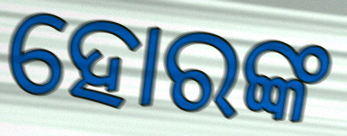
ହୋରଙ୍କ